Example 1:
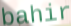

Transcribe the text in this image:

bahir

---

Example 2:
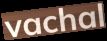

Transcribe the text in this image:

vachal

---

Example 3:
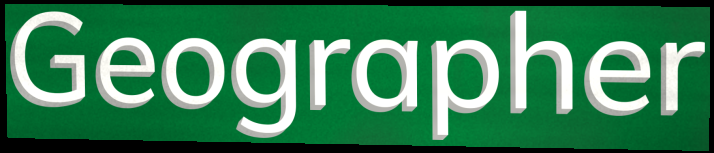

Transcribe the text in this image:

Geographer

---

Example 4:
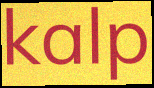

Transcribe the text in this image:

kalp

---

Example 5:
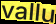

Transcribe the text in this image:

vallu